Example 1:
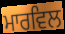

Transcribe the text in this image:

ਮਾਰਵਿਲ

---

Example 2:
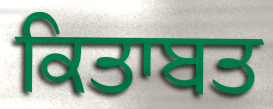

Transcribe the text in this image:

ਕਿਤਾਬਤ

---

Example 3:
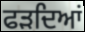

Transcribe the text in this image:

ਫੜਦਿਆਂ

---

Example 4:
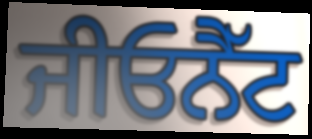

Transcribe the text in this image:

ਜੀਓਨੈੱਟ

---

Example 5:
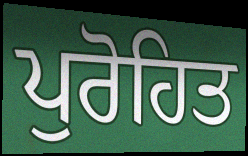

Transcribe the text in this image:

ਪੁਰੋਹਿਤ